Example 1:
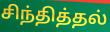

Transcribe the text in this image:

சிந்தித்தல்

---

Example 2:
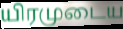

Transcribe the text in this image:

யிரமுடைய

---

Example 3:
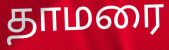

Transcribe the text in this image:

தாமரை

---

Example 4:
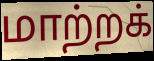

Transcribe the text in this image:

மாற்றக்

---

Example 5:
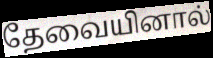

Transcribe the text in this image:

தேவையினால்